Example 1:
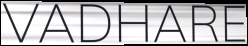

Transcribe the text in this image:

VADHARE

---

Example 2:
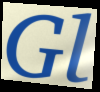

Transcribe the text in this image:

Gl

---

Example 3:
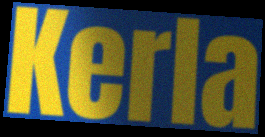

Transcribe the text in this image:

Kerla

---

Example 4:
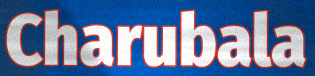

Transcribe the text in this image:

Charubala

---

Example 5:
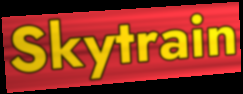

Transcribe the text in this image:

Skytrain